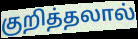
குறித்தலால்